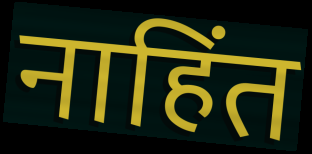
नाहिंत